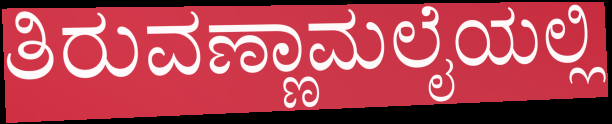
ತಿರುವಣ್ಣಾಮಲೈಯಲ್ಲಿ